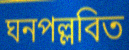
ঘনপল্লবিত